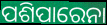
ପଶିପାରେନା